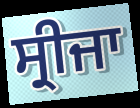
ਸ੍ਰੀਜਾ